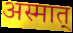
अस्मात्